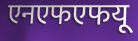
एनएफएफयू